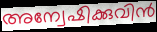
അന്വേഷിക്കുവിൻ